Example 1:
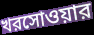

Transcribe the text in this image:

খরসোওয়ার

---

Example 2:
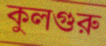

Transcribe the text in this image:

কুলগুরু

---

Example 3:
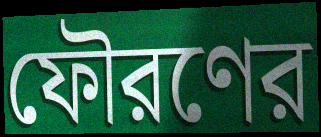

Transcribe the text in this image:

ফৌরণের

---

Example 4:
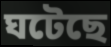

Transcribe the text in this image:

ঘটেছে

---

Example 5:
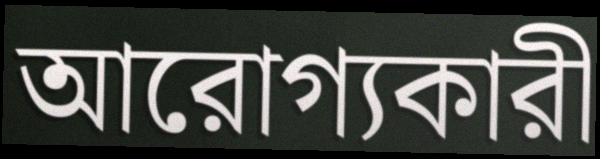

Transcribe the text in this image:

আরোগ্যকারী